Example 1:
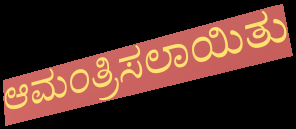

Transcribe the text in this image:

ಆಮಂತ್ರಿಸಲಾಯಿತು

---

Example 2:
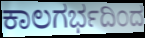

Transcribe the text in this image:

ಕಾಲಗರ್ಭದಿಂದ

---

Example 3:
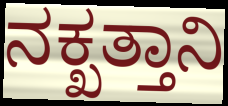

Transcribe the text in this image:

ನಕ್ಖತ್ತಾನಿ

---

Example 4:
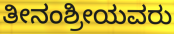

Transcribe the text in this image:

ತೀನಂಶ್ರೀಯವರು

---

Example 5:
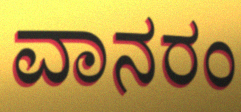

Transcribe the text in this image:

ವಾನರಂ